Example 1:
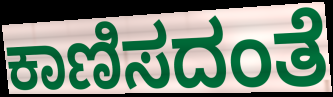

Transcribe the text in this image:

ಕಾಣಿಸದಂತೆ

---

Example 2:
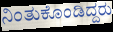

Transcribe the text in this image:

ನಿಂತುಕೊಂಡಿದ್ದರು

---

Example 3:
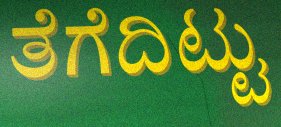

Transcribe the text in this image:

ತೆಗೆದಿಟ್ಟು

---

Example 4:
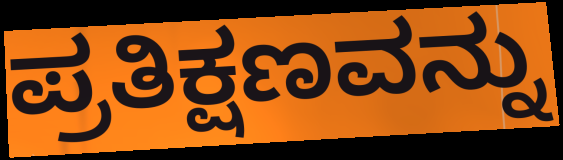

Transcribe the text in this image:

ಪ್ರತಿಕ್ಷಣವನ್ನು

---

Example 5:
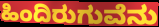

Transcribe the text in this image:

ಹಿಂದಿರುಗುವೆನು